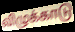
விழுக்காடு